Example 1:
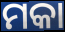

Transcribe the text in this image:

ମକା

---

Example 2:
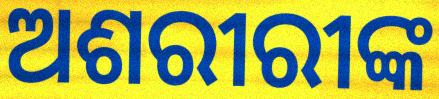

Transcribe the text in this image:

ଅଶରୀରୀଙ୍କ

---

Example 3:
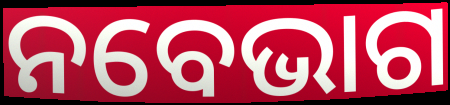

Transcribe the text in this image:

ନବେଭାଗ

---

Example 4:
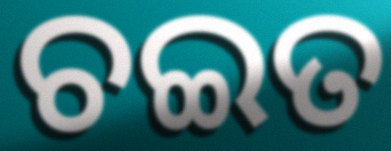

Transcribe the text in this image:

ଚଇତ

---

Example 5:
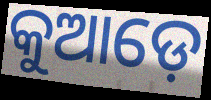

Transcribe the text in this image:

କୁଆଡ଼େ